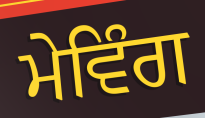
ਮੇਵਿੰਗ